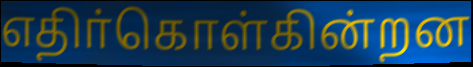
எதிர்கொள்கின்றன